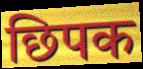
छिपक